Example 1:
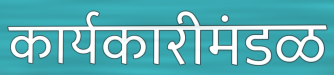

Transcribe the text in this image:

कार्यकारीमंडळ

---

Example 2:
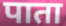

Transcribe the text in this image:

पाता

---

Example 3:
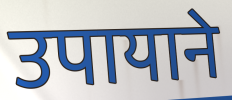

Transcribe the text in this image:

उपायाने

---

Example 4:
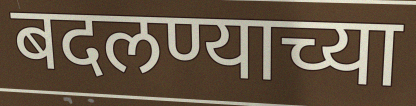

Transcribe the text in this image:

बदलण्याच्या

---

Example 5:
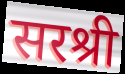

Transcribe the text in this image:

सरश्री